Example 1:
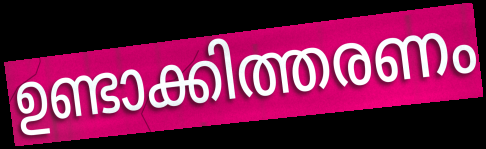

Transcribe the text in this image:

ഉണ്ടാക്കിത്തരണം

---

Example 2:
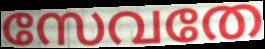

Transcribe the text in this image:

സേവതേ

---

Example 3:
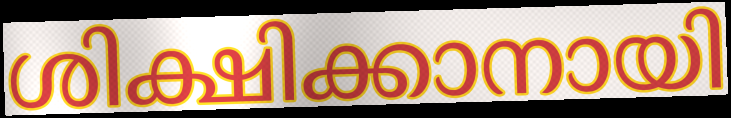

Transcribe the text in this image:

ശിക്ഷിക്കാനായി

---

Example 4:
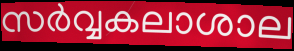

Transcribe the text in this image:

സർവ്വകലാശാല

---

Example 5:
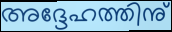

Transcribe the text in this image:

അദ്ദേഹത്തിനു്